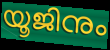
യൂജിനും